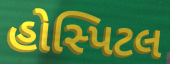
હોસ્પિટલ